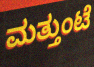
ಮತ್ತುಂಟೆ